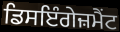
ਡਿਸਇੰਗੇਜ਼ਮੈਂਟ